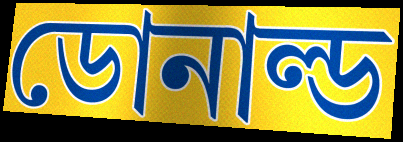
ডোনাল্ড